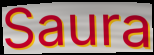
Saura